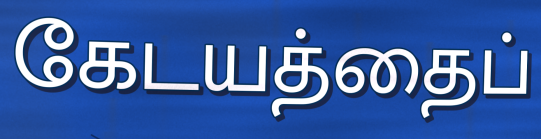
கேடயத்தைப்